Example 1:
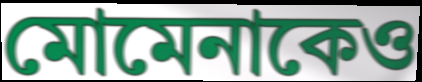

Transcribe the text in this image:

মোমেনাকেও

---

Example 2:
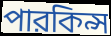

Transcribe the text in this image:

পারকিন্স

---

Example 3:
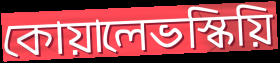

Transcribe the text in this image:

কোয়ালেভস্কিয়ি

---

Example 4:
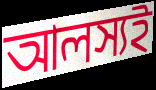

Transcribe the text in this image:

আলস্যই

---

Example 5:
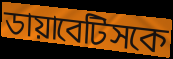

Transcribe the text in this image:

ডায়াবেটিসকে